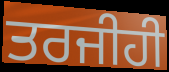
ਤਰਜੀਹੀ